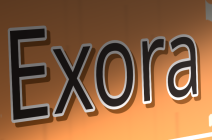
Exora